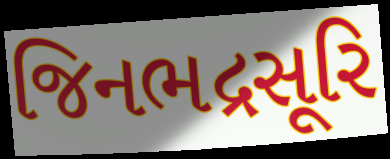
જિનભદ્રસૂરિ